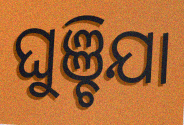
ଘୁଞ୍ଚିଯା